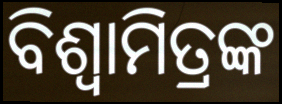
ବିଶ୍ବାମିତ୍ରଙ୍କ